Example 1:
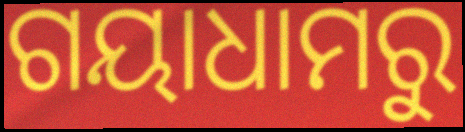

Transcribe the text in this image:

ଗୟାଧାମରୁ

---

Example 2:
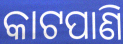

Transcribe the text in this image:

କାଟପାଣି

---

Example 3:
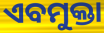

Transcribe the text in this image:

ଏବମୁକ୍ତା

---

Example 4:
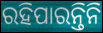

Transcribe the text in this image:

ରହିପାରନ୍ତିନି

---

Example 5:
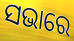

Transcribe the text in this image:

ସଭାରେ